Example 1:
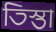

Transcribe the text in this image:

তিস্তা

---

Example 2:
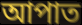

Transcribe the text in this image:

আপাত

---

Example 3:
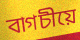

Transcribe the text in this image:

বাগচীয়ে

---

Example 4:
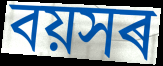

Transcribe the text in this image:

বয়সৰ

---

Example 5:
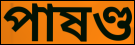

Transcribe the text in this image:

পাষণ্ড